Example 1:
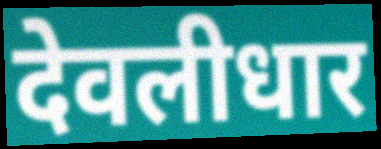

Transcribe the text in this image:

देवलीधार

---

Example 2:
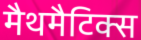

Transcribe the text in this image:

मैथमैटिक्स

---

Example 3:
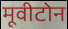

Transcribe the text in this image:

मूवीटोन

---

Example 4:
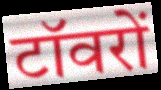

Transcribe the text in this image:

टॉवरों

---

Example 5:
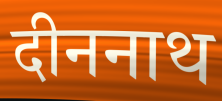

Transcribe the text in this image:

दीननाथ